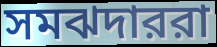
সমঝদাররা